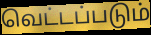
வெட்டப்படும்